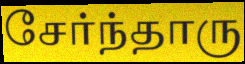
சேர்ந்தாரு